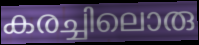
കരച്ചിലൊരു